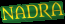
NADRA